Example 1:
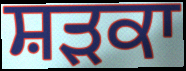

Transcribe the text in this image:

ਸ਼ੜਕਾ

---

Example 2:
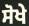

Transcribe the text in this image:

ਸੋਖੇ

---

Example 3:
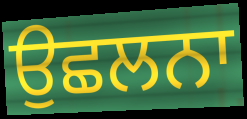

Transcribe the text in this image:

ਉਛਲਨਾ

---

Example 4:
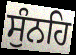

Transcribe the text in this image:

ਸੁੰਨਹਿ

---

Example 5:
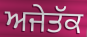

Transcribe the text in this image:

ਅਜੇਤੱਕ